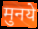
मुनये